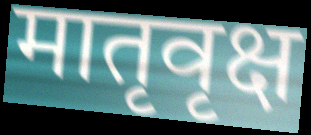
मातृवृक्ष